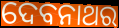
ଦେବନାଥର